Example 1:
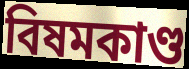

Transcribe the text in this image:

বিষমকাণ্ড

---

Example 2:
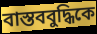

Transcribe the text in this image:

বাস্তববুদ্ধিকে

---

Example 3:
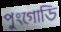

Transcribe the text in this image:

পুংগোডি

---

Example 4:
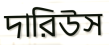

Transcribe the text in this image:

দারিউস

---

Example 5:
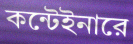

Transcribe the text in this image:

কন্টেইনারে